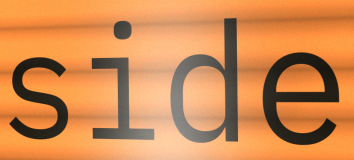
side